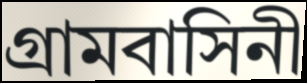
গ্রামবাসিনী